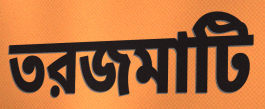
তরজমাটি